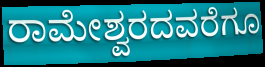
ರಾಮೇಶ್ವರದವರೆಗೂ